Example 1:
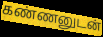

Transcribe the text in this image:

கண்ணனுடன்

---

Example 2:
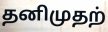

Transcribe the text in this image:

தனிமுதற்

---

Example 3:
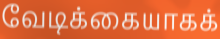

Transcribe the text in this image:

வேடிக்கையாகக்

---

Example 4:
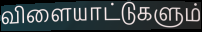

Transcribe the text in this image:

விளையாட்டுகளும்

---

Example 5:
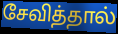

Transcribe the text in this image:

சேவித்தால்